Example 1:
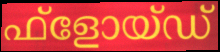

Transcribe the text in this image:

ഫ്ളോയ്ഡ്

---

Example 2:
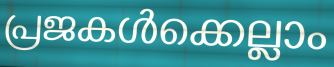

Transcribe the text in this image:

പ്രജകൾക്കെല്ലാം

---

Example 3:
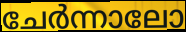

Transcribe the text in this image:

ചേർന്നാലോ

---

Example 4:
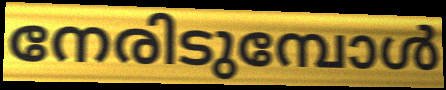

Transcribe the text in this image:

നേരിടുമ്പോൾ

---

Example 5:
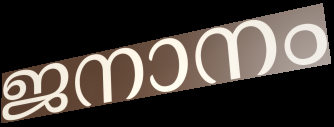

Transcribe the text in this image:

ജനാനം